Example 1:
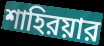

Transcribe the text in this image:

শাহিরয়ার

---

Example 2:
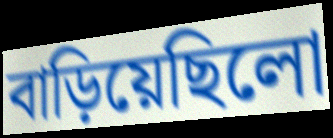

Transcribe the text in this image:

বাড়িয়েছিলো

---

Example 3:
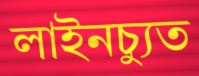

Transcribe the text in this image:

লাইনচ্যুত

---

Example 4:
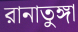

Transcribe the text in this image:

রানাতুঙ্গা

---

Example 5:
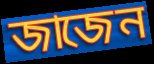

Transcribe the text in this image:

জাজেন